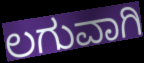
ಲಗುವಾಗಿ